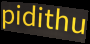
pidithu